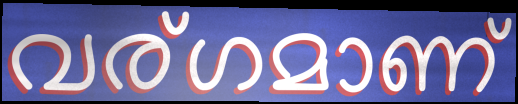
വര്ഗമാണ്